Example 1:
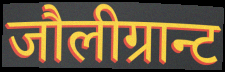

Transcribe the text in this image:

जौलीग्रान्ट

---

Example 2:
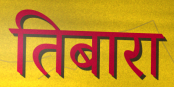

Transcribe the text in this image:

तिबारा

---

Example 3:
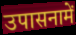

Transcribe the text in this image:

उपासनामें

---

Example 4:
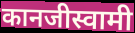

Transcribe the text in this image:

कानजीस्वामी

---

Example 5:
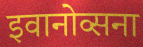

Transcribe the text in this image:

इवानोव्सना